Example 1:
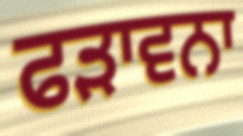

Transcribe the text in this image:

ਫੜਾਵਨਾ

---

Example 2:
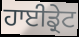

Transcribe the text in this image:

ਹਾਈਡ੍ਰੇਟ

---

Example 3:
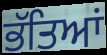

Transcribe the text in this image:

ਭੱਤਿਆਂ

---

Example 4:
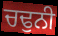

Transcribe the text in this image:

ਚਢੁਨੀ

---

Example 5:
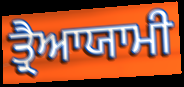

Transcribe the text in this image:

ਤ੍ਰੈਆਯਾਮੀ